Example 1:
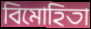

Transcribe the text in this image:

বিমোহিতা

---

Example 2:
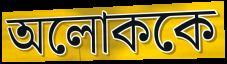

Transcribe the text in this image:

অলোককে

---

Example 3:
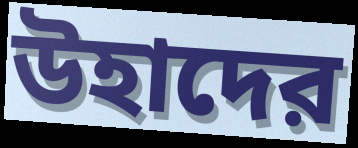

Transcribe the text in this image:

উহাদের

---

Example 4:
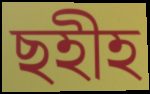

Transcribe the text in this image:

ছহীহ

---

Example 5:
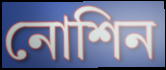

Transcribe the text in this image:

নোশিন